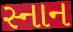
સ્નાન